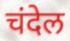
चंदेल